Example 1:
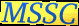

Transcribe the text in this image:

MSSC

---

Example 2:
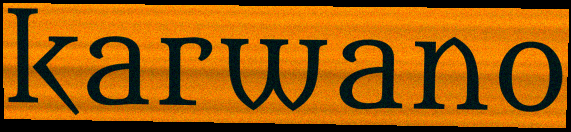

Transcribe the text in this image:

karwano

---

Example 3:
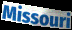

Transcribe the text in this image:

Missouri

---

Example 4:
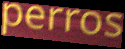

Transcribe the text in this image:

perros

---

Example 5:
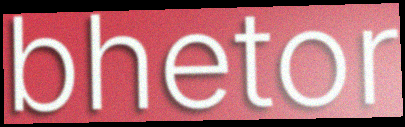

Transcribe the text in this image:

bhetor